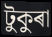
টুকুৰা